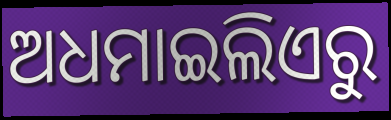
ଅଧମାଇଲିଏରୁ